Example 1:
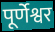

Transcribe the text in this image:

पूर्णेश्वर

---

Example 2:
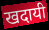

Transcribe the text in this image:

खदायी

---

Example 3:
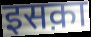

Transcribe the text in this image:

इसक़ा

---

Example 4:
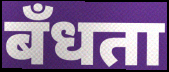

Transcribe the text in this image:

बँधता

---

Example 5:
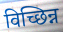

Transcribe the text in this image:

विच्छिन्न